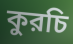
কুরচি